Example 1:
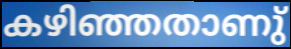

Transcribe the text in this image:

കഴിഞ്ഞതാണു്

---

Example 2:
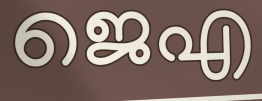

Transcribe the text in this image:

ജെഎ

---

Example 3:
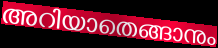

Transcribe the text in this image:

അറിയാതെങ്ങാനും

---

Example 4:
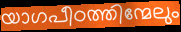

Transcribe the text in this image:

യാഗപീഠത്തിന്മേലും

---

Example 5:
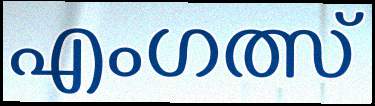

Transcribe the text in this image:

എംഗത്സ്